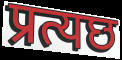
प्रत्यछ